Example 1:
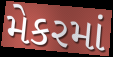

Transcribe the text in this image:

મેકરમાં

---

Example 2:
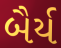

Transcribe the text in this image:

બૈર્ય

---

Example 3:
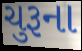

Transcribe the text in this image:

ચુરૂના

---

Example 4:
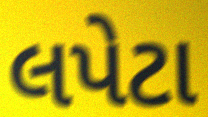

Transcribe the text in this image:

લપેટા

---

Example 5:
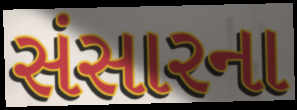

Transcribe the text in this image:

સંસારના